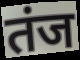
तंज